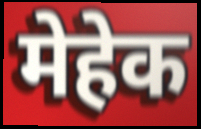
मेहेक